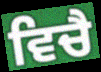
ਵਿਚੈ